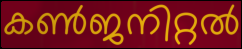
കൺജനിറ്റൽ